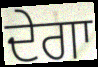
ਦੇਗਾ